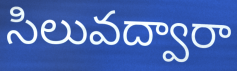
సిలువద్వారా